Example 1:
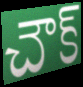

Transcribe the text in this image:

చౌక్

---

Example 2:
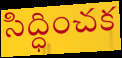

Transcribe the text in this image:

సిద్ధించక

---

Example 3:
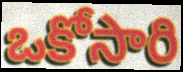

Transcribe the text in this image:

ఒకోసారి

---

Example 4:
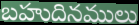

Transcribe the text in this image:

బహుదినములు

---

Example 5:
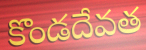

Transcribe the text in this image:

కొండదేవత